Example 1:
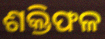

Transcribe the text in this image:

ଶକ୍ତିଫଳ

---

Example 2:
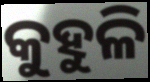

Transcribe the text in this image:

କୁହୁଳି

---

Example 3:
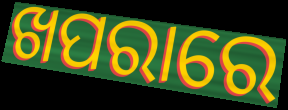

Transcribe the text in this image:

ଖପରାରେ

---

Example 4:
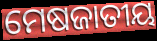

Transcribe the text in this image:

ମେଷଜାତୀୟ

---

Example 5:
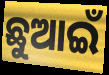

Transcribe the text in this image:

ଛୁଆଇଁ